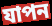
যাপন